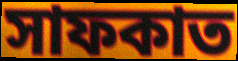
সাফকাত